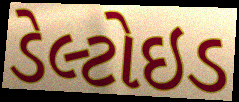
ડેલ્ટોઇડ